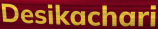
Desikachari